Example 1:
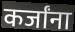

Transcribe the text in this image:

कर्जांना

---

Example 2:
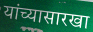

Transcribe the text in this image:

यांच्यासारखा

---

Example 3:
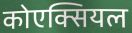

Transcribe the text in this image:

कोएक्सियल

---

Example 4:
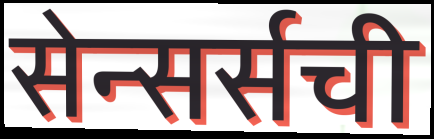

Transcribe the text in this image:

सेन्सर्सची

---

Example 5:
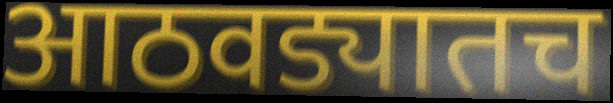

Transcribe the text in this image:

आठवड्यातच